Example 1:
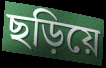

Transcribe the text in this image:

ছড়িয়ে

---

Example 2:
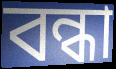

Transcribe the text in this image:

বন্ধা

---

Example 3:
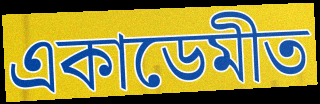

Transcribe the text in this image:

একাডেমীত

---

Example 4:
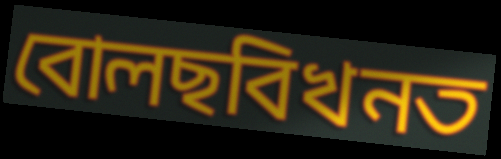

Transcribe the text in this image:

বোলছবিখনত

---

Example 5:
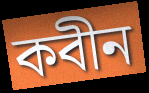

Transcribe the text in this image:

কবীন